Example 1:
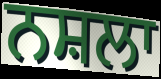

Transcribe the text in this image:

ਨਸ਼ਲਾ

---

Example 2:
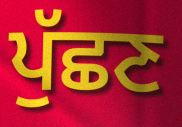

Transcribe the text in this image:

ਪੁੱਛਣ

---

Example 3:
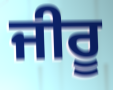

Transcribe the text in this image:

ਜੀਰੂ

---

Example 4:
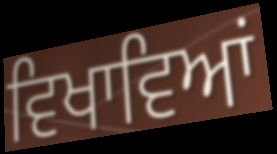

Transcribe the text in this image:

ਵਿਖਾਵਿਆਂ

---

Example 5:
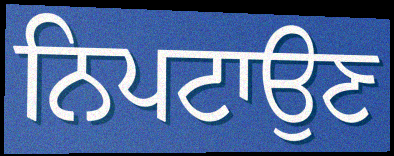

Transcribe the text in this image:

ਨਿਪਟਾਉਣ